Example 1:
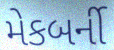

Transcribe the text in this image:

મેકબર્ની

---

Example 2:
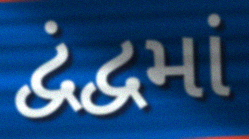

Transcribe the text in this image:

દ્વંદ્વમાં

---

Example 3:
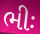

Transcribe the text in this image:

ભીઃ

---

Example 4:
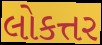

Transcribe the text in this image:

લોકત્તર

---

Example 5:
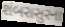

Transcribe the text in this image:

શંબરાસુરના